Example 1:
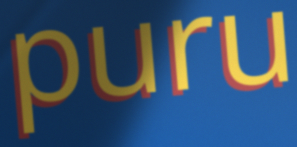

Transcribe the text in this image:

puru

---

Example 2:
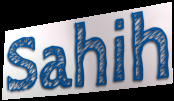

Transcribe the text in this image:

Sahih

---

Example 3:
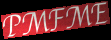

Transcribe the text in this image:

PMFME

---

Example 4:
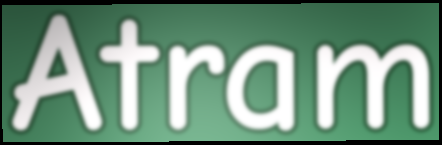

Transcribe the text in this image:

Atram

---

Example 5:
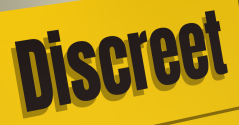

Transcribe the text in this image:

Discreet